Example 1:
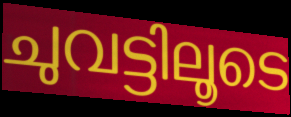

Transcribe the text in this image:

ചുവട്ടിലൂടെ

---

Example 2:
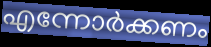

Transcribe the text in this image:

എന്നോർക്കണം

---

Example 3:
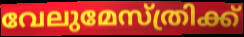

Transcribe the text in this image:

വേലുമേസ്ത്രിക്ക്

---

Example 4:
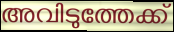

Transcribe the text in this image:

അവിടുത്തേക്ക്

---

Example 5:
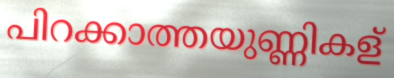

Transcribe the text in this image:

പിറക്കാത്തയുണ്ണികള്